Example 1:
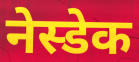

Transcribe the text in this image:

नेस्डेक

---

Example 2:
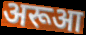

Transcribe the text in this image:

अरूआ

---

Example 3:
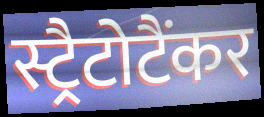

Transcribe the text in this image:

स्ट्रैटोटैंकर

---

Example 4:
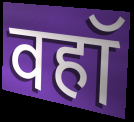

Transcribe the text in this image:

वहॉ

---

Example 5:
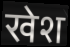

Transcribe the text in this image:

खेश